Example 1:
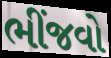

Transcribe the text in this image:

ભીંજવો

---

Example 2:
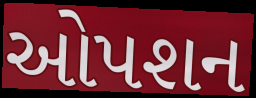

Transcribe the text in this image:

ઓપશન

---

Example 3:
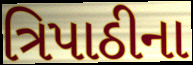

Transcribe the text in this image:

ત્રિપાઠીના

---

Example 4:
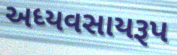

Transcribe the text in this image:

અધ્યવસાયરૂપ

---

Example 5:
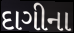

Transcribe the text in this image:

દાગીના